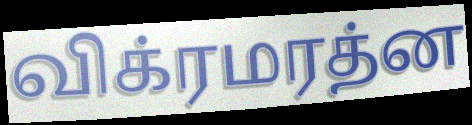
விக்ரமரத்ன